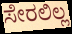
ಸೇರಲಿಲ್ಲ